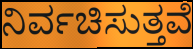
ನಿರ್ವಚಿಸುತ್ತವೆ